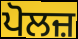
ਪੋਲਜ਼